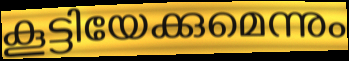
കൂട്ടിയേക്കുമെന്നും